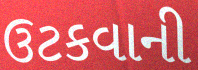
ઉટકવાની